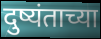
दुष्यंताच्या